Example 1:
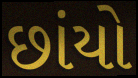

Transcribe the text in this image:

છાંયો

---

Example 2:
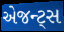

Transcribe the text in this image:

એજન્ટ્સ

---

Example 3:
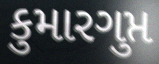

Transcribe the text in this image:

કુમારગુપ્ત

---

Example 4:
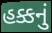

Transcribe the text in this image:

હક્કનું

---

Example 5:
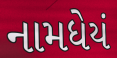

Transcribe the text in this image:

નામધેયં